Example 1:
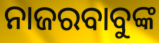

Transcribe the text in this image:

ନାଜରବାବୁଙ୍କ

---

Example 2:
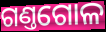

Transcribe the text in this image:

ଗଣ୍ତଗୋଳ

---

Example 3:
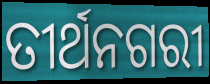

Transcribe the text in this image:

ତୀର୍ଥନଗରୀ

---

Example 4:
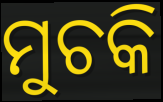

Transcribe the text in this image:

ମୁଚକି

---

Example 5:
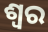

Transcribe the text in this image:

ଶ୍ୱର